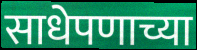
साधेपणाच्या